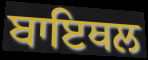
ਬਾਇਥਲ